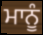
ਮਾਨੂੰ